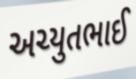
અચ્યુતભાઈ